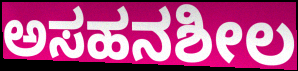
ಅಸಹನಶೀಲ